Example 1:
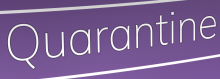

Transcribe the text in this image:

Quarantine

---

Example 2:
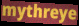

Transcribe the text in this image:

mythreye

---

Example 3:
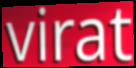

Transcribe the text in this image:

virat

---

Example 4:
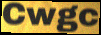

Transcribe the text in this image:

Cwgc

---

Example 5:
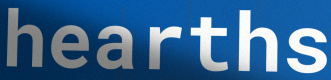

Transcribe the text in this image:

hearths